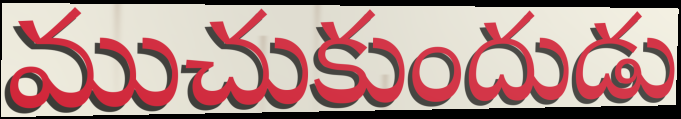
ముచుకుందుడు